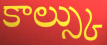
కాల్స్కు